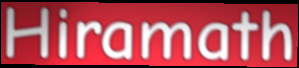
Hiramath